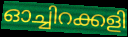
ഓച്ചിറക്കളി